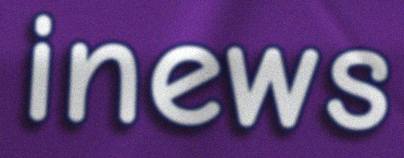
inews